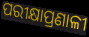
ପରୀକ୍ଷାପ୍ରଣାଳୀ